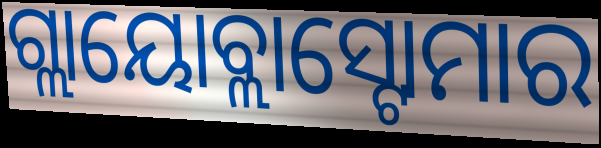
ଗ୍ଲାୟୋବ୍ଲାସ୍ଟୋମାର